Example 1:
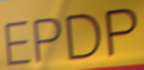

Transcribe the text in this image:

EPDP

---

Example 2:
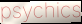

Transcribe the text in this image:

psychics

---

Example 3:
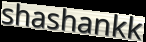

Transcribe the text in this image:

shashankk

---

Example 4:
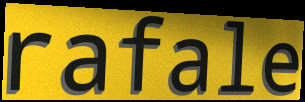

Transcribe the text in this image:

rafale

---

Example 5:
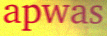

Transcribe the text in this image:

apwas